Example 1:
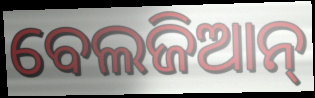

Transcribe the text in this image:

ବେଲଜିଆନ୍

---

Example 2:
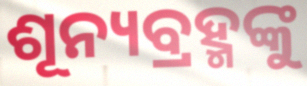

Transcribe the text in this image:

ଶୂନ୍ୟବ୍ରହ୍ମଙ୍କୁ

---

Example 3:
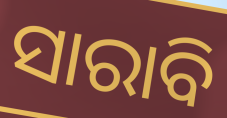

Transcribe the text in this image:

ସାରାବି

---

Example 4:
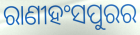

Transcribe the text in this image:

ରାଣୀହଂସପୁରର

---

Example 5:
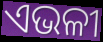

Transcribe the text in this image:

ଏଭଳୀ